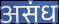
असंध